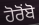
ਹੋਰੋਂਬੋ